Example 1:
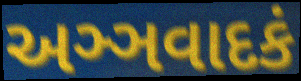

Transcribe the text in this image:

અઞ્ઞવાદકં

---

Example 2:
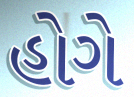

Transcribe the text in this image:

હોગે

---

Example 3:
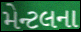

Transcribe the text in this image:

મેન્ટલના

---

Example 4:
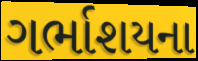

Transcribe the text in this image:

ગર્ભાશયના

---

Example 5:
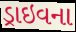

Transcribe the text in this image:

ડ્રાઇવના